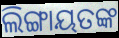
ଲିଙ୍ଗାୟତଙ୍କ